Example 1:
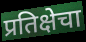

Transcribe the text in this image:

प्रतिक्षेचा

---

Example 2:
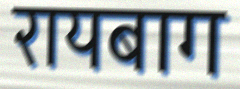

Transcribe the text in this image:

रायबाग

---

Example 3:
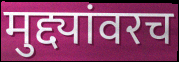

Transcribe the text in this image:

मुद्द्यांवरच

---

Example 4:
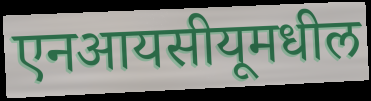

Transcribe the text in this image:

एनआयसीयूमधील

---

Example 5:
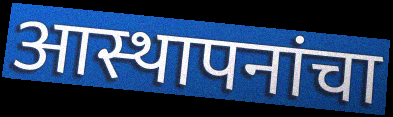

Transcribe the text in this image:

आस्थापनांचा